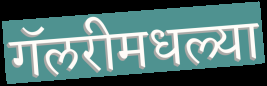
गॅलरीमधल्या